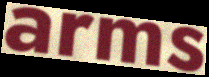
arms